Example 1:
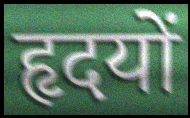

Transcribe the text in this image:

हृदयों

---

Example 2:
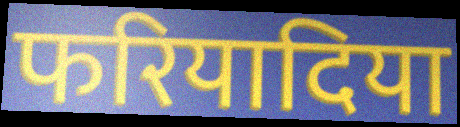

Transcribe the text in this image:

फरियादिया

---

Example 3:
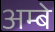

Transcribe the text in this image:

अम्बे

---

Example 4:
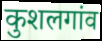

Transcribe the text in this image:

कुशलगांव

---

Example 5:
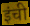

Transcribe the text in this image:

इंची